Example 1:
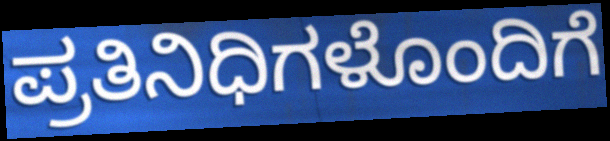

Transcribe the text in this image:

ಪ್ರತಿನಿಧಿಗಳೊಂದಿಗೆ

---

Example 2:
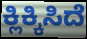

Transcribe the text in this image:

ಕ್ಲಿಕ್ಕಿಸಿದೆ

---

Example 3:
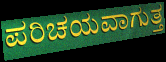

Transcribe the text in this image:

ಪರಿಚಯವಾಗುತ್ತ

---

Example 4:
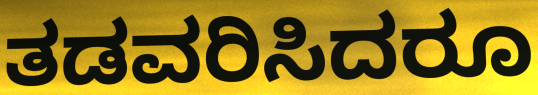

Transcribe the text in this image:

ತಡವರಿಸಿದರೂ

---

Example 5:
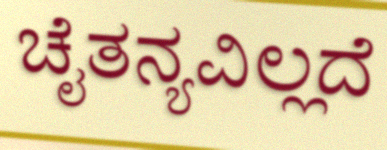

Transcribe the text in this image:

ಚೈತನ್ಯವಿಲ್ಲದೆ